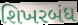
શિખરબંધ